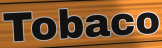
Tobaco